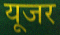
यूजर